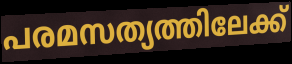
പരമസത്യത്തിലേക്ക്